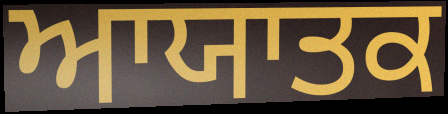
ਆਯਾਤਕ